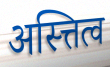
अस्त्तित्व